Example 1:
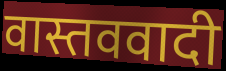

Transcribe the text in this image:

वास्तववादी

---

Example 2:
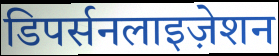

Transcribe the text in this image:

डिपर्सनलाइज़ेशन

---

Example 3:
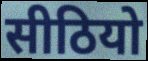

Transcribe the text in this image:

सीठियो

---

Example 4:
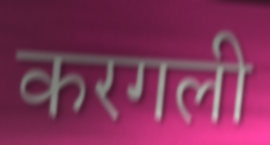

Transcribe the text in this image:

करगली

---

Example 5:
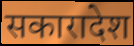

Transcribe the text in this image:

सकारादेश